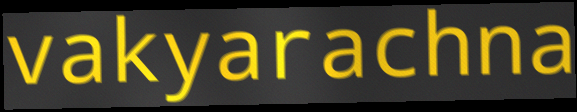
vakyarachna